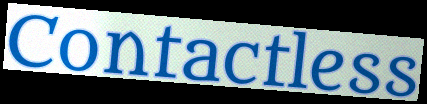
Contactless